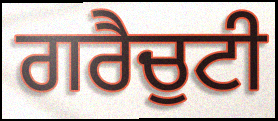
ਗਰੈਚੁਟੀ